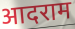
आदराम